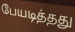
பேயடித்தது